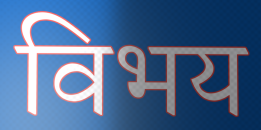
विभय